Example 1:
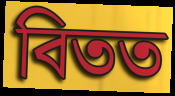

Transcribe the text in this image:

বিতত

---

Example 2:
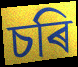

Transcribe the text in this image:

চৰি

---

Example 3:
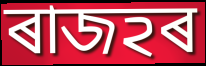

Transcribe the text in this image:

ৰাজহৰ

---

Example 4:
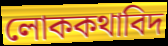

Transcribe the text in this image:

লোককথাবিদ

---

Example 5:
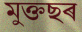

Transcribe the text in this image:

মুক্তছৰ